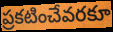
ప్రకటించేవరకూ